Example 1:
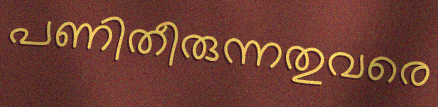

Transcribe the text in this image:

പണിതീരുന്നതുവരെ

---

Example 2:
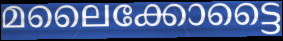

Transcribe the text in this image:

മലൈക്കോട്ടൈ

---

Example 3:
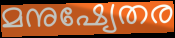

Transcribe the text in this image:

മനുഷ്യേതര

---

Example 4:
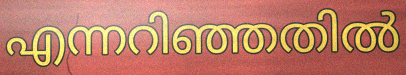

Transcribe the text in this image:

എന്നറിഞ്ഞതിൽ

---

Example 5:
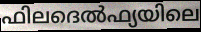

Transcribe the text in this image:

ഫിലദെൽഫ്യയിലെ